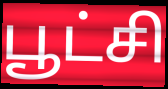
பூட்சி